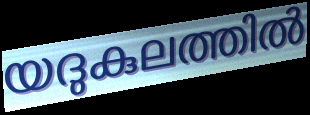
യദുകുലത്തിൽ